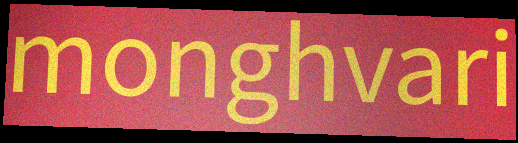
monghvari